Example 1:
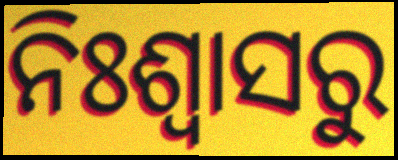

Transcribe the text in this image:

ନିଃଶ୍ବାସରୁ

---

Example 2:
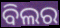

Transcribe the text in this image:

ବିଲର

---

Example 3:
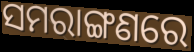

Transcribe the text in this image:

ସମରାଙ୍ଗଣରେ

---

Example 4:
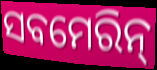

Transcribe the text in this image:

ସବମେରିନ୍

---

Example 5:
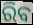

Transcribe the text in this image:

ରିବ